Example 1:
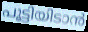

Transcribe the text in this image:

പൂട്ടിയിടാൻ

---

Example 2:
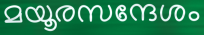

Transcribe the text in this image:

മയൂരസന്ദേശം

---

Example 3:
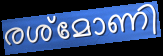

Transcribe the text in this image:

രശ്മോണി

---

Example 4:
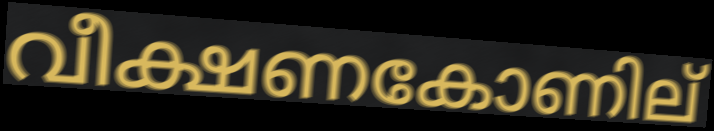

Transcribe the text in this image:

വീക്ഷണകോണില്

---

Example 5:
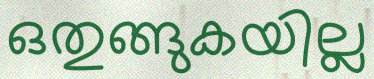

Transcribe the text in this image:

ഒതുങ്ങുകയില്ല